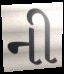
ની